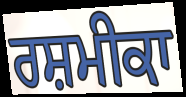
ਰਸ਼ਮੀਕਾ